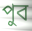
পুব